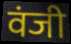
वंजी